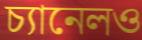
চ্যানেলও